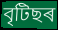
বৃটিছৰ